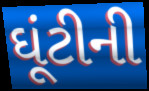
ઘૂંટીની